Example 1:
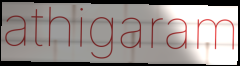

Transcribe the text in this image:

athigaram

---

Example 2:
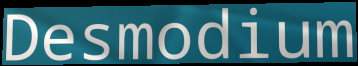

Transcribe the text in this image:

Desmodium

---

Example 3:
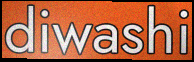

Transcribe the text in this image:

diwashi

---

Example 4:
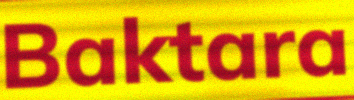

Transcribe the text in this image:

Baktara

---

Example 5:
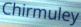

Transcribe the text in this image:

Chirmuley